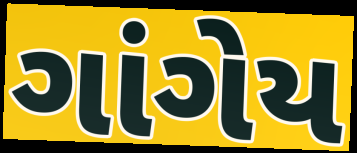
ગાંગેય